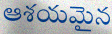
ఆశయమైన